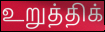
உறுத்திக்